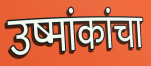
उष्मांकांचा